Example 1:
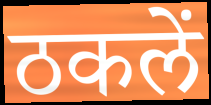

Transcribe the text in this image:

ठकलें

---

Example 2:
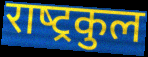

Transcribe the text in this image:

राष्ट्रकुल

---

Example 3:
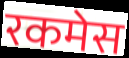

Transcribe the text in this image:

रकमेस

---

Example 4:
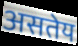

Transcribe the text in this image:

असतेय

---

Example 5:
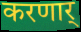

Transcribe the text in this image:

करणार्